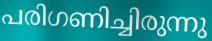
പരിഗണിച്ചിരുന്നു